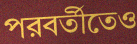
পরবর্তীতেও